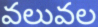
వలువల